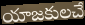
యాజకులచే